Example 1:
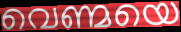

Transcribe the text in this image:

വെണ്മയെ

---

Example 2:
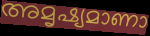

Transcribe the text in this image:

അമൃഷ്യമാണാ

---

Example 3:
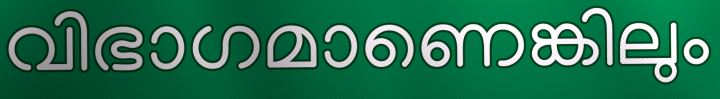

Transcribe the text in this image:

വിഭാഗമാണെങ്കിലും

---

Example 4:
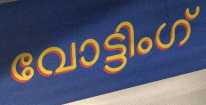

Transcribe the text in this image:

വോട്ടിംഗ്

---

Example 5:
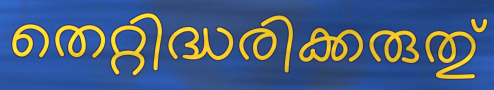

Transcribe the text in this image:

തെറ്റിദ്ധരിക്കരുതു്